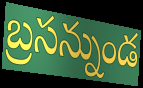
బ్రసన్నుండ